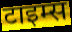
टाइम्स